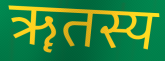
ॠतस्य